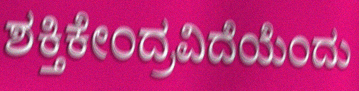
ಶಕ್ತಿಕೇಂದ್ರವಿದೆಯೆಂದು